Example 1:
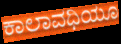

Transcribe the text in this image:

ಕಾಲಾವಧಿಯೂ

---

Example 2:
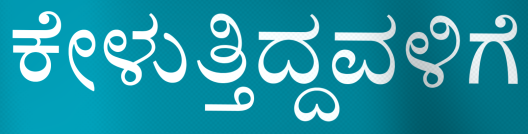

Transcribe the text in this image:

ಕೇಳುತ್ತಿದ್ದವಳಿಗೆ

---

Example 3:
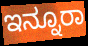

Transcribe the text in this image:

ಇನ್ನೂರಾ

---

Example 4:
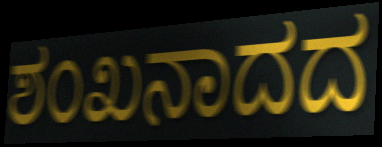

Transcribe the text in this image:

ಶಂಖನಾದದ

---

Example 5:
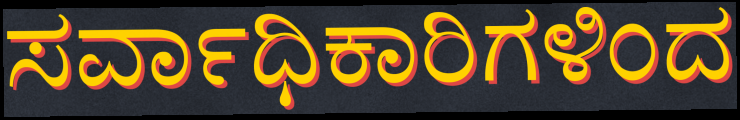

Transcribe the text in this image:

ಸರ್ವಾಧಿಕಾರಿಗಳಿಂದ